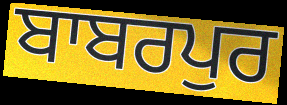
ਬਾਬਰਪੁਰ